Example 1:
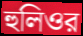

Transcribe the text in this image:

হুলিওর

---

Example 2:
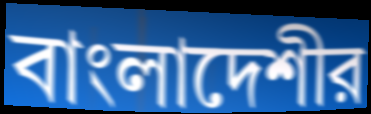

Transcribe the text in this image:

বাংলাদেশীর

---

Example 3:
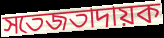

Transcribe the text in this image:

সতেজতাদায়ক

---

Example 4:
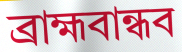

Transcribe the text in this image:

ব্রাহ্মবান্ধব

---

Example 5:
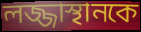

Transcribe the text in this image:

লজ্জাস্থানকে